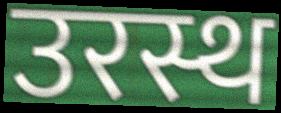
उरस्थ